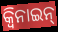
କ୍ୱିନାଇନ୍